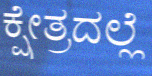
ಕ್ಷೇತ್ರದಲ್ಲೆ